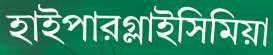
হাইপারগ্লাইসিমিয়া